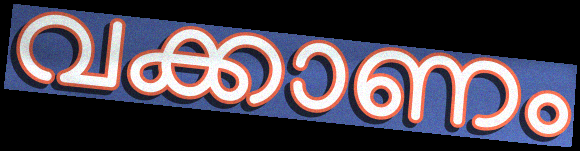
വക്കാണം